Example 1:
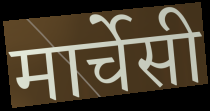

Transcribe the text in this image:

मार्चेसी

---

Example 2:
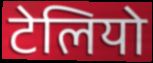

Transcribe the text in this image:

टेलियो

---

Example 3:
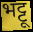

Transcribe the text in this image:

भट्टू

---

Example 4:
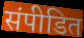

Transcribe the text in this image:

संपीडित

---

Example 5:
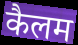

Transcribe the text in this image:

कैलम